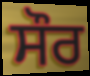
ਸੌਰ